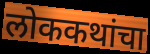
लोककथांचा